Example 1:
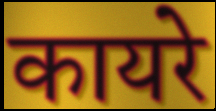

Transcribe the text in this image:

कायरे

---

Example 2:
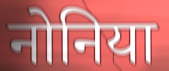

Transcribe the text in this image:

नोनिया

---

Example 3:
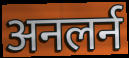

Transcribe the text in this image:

अनलर्न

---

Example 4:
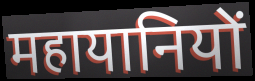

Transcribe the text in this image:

महायानियों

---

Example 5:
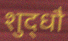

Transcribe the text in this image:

शुद्धौ